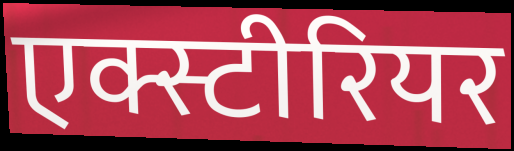
एक्स्टीरियर